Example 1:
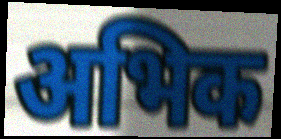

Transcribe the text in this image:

अभिक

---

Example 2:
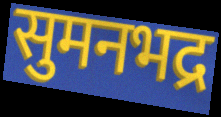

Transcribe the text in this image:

सुमनभद्र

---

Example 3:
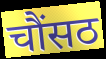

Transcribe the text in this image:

चौंसठ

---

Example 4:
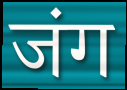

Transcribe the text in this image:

जंग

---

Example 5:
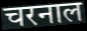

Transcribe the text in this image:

चरनाल